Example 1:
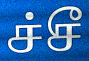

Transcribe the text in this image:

ச்சீ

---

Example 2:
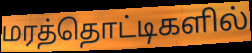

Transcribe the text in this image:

மரத்தொட்டிகளில்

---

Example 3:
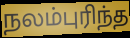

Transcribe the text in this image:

நலம்புரிந்த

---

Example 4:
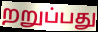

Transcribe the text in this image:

றறுப்பது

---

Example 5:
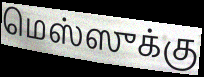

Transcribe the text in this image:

மெஸ்ஸுக்கு